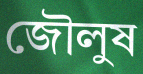
জৌলুষ